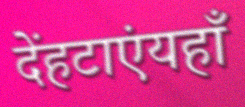
देंहटाएंयहाँ